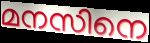
മനസിനെ